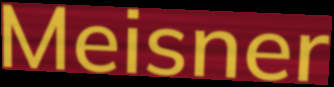
Meisner